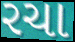
રચા